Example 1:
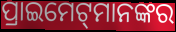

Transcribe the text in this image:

ପ୍ରାଇମେଟ୍‌ମାନଙ୍କର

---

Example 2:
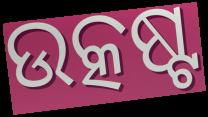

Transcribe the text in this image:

ଉତ୍କଷ୍ଟ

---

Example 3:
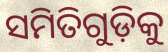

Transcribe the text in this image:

ସମିତିଗୁଡ଼ିକୁ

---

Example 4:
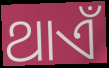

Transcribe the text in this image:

ଥାଏଁ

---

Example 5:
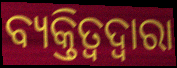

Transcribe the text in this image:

ବ୍ୟକ୍ତିତ୍ୱଦ୍ୱାରା